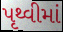
પૃથ્વીમાં